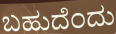
ಬಹುದೆಂದು